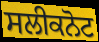
ਸਲੀਕਨੋਟ